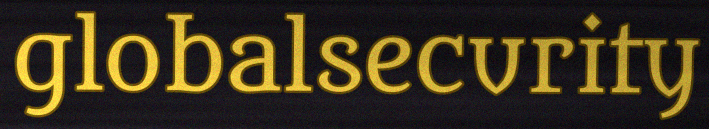
globalsecurity